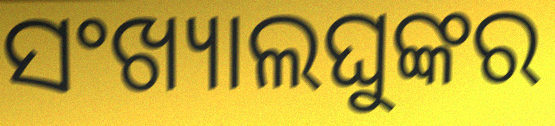
ସଂଖ୍ୟାଲଘୁଙ୍କର